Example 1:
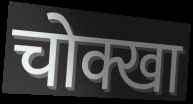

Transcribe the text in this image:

चोक्खा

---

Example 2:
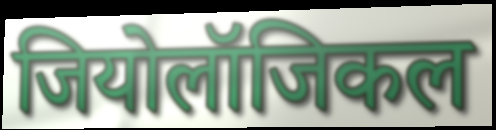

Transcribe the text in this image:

जियोलॉजिकल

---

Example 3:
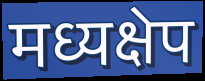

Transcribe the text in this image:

मध्यक्षेप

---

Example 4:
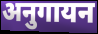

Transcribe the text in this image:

अनुगायन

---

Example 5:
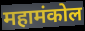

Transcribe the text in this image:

महामंकोल